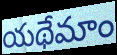
యథేమాం